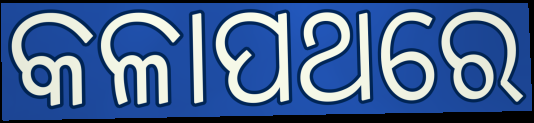
କଳାପଥରେ